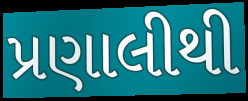
પ્રણાલીથી